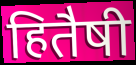
हितैषी